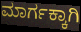
ಮಾರ್ಗಕ್ಕಾಗಿ